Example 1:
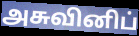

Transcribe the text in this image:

அசுவினிப்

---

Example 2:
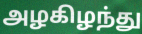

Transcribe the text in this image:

அழகிழந்து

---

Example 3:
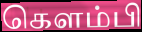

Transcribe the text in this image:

கெளம்பி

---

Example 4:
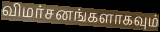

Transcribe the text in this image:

விமர்சனங்களாகவும்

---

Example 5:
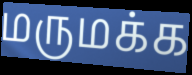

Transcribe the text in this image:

மருமக்க